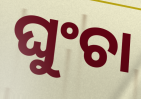
ଘୁଂଚା